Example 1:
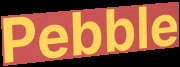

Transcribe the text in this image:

Pebble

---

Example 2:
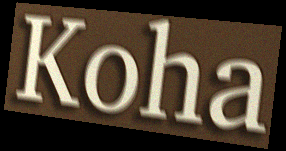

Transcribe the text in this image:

Koha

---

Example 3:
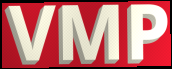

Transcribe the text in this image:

VMP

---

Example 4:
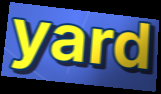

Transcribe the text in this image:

yard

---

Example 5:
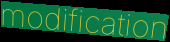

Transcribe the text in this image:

modification